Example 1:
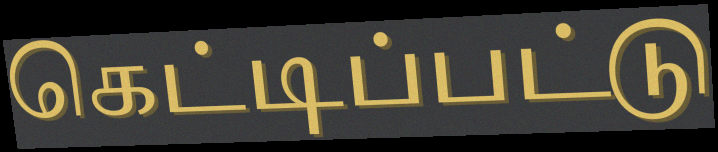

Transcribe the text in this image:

கெட்டிப்பட்டு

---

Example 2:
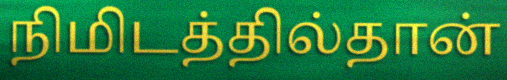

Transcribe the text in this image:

நிமிடத்தில்தான்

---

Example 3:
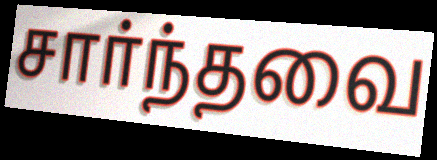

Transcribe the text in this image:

சார்ந்தவை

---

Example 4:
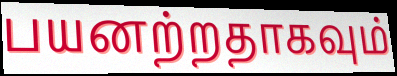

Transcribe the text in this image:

பயனற்றதாகவும்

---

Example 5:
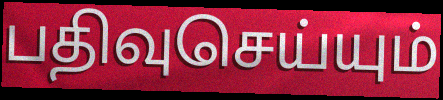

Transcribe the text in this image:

பதிவுசெய்யும்